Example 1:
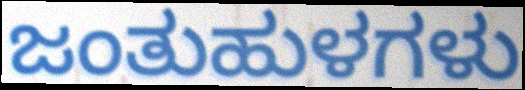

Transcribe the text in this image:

ಜಂತುಹುಳಗಳು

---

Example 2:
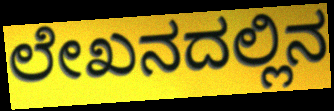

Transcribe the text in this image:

ಲೇಖನದಲ್ಲಿನ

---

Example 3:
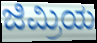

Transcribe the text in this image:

ಜಿಮ್ರಿಯ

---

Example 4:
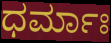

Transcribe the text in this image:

ಧರ್ಮಾಃ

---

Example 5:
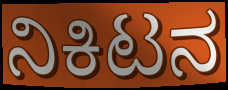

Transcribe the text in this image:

ನಿಕಿಟನ